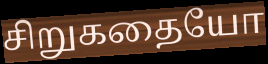
சிறுகதையோ